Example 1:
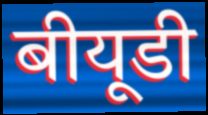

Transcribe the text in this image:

बीयूडी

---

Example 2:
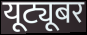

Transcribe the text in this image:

यूट्यूबर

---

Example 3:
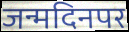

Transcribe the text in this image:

जन्मदिनपर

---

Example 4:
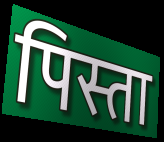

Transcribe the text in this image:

पिस्ता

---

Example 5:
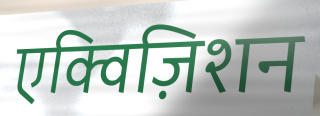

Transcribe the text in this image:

एक्विज़िशन